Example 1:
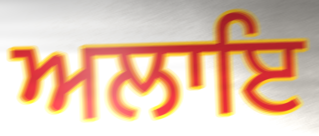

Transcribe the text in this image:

ਅਲਾਇ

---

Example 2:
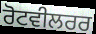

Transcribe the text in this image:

ਰੋਟਵੀਲਰਰ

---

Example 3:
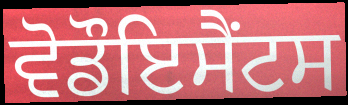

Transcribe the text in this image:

ਵੋਡੌਇਸੈਂਟਸ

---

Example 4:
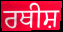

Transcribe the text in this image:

ਰਥੀਸ਼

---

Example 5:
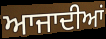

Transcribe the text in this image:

ਆਜਾਦੀਆਂ